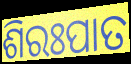
ଶିରଃପାତ